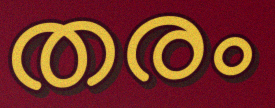
തരം